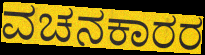
ವಚನಕಾರರ